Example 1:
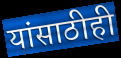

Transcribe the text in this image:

यांसाठीही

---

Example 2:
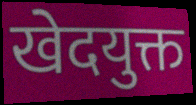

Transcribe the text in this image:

खेदयुक्त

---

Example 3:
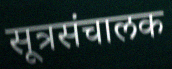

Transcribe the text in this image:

सूत्रसंचालक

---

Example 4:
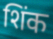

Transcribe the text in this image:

शिंक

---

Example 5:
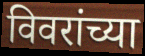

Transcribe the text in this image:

विवरांच्या